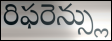
రిఫరెన్స్లు